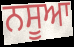
ਨਸੂਆ